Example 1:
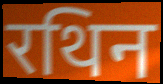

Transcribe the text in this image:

रथिन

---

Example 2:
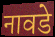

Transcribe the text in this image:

नावडे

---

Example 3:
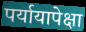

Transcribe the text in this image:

पर्यायापेक्षा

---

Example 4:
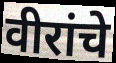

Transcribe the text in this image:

वीरांचे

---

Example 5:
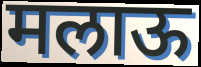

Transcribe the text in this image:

मलाऊ